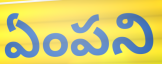
ఏంపని